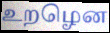
உறழென